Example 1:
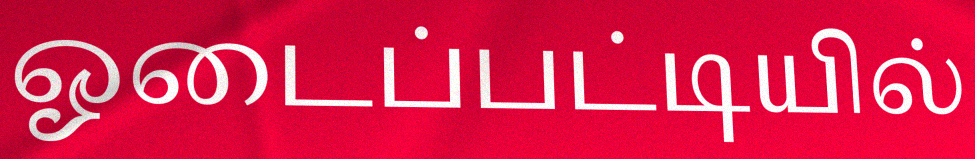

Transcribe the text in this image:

ஓடைப்பட்டியில்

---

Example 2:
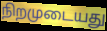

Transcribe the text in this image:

நிறமுடையது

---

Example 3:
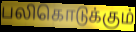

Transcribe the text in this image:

பலிகொடுக்கும்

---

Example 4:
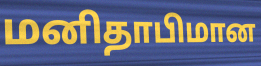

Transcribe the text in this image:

மனிதாபிமான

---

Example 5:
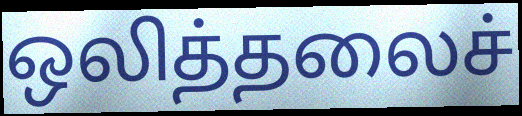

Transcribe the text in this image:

ஒலித்தலைச்